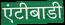
एंटीबाडी